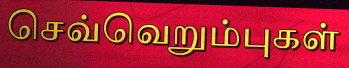
செவ்வெறும்புகள்